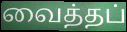
வைத்தப்